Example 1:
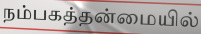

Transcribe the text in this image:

நம்பகத்தன்மையில்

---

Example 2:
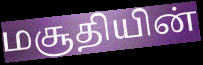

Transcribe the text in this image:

மசூதியின்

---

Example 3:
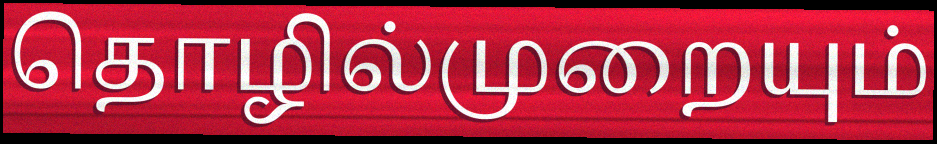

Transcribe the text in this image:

தொழில்முறையும்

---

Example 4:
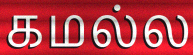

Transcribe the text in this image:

கமல்ல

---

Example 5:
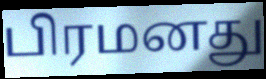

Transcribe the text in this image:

பிரமனது